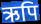
ऋपि